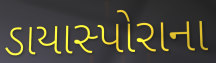
ડાયાસ્પોરાના